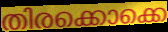
തിരക്കൊക്കെ